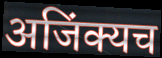
अजिंक्यच